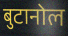
बुटानोल